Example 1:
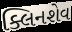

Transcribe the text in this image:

ક્લિનશેવ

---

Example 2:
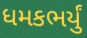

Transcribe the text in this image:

ધમકભર્યું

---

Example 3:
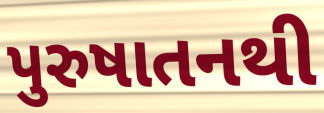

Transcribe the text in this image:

પુરુષાતનથી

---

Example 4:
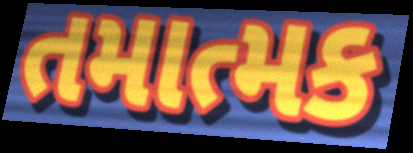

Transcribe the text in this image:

તમાત્મક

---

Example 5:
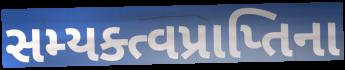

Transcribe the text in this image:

સમ્યક્ત્વપ્રાપ્તિના